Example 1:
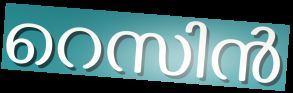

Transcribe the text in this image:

റെസിൻ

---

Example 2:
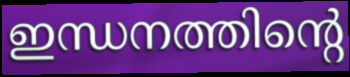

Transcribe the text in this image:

ഇന്ധനത്തിന്റെ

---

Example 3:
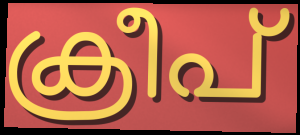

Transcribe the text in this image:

ക്രീപ്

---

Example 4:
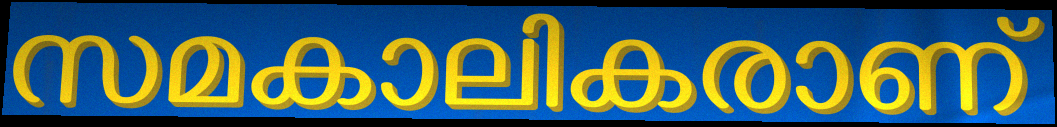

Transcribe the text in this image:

സമകാലികരാണ്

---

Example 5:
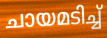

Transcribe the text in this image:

ചായമടിച്ച്